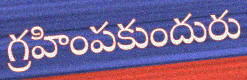
గ్రహింపకుందురు